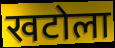
खटोला